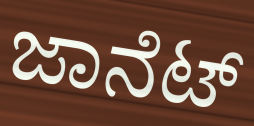
ಜಾನೆಟ್